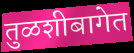
तुळशीबागेत